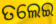
ତଲେଇ